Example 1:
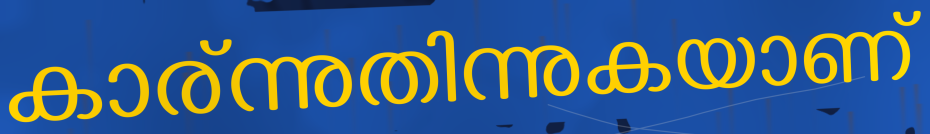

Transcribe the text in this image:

കാര്ന്നുതിന്നുകയാണ്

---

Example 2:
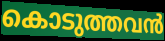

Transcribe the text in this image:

കൊടുത്തവൻ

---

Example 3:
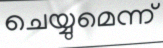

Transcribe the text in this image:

ചെയ്യുമെന്ന്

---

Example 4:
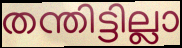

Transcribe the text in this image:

തന്തിട്ടില്ലാ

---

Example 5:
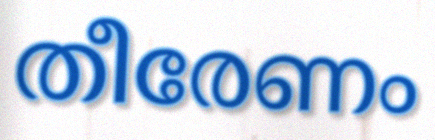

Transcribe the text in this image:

തീരേണം